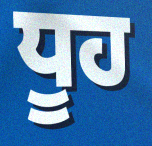
ਧੂਹ